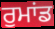
ਰੁਮਾਂਡ